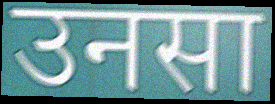
उनसा